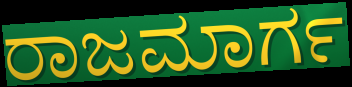
ರಾಜಮಾರ್ಗ